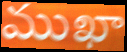
ముఖా